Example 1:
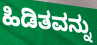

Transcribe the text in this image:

ಹಿಡಿತವನ್ನು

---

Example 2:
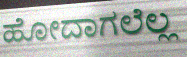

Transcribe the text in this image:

ಹೋದಾಗಲೆಲ್ಲ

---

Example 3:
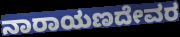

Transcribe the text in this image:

ನಾರಾಯಣದೇವರ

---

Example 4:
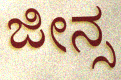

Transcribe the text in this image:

ಜೀನ್ಸ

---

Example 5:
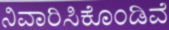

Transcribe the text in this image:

ನಿವಾರಿಸಿಕೊಂಡಿವೆ